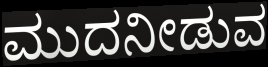
ಮುದನೀಡುವ